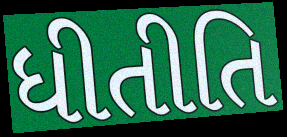
ધીતીતિ